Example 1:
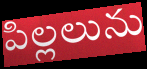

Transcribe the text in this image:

పిల్లలును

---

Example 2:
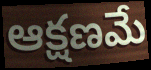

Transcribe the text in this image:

ఆక్షణమే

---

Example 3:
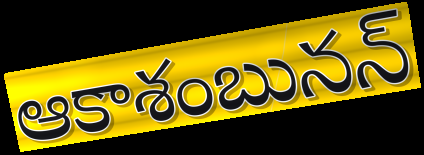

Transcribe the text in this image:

ఆకాశంబునన్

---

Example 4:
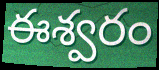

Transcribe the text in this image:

ఈశ్వరం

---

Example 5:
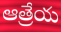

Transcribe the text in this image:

ఆత్రేయ